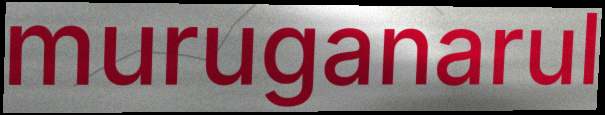
muruganarul